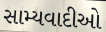
સામ્યવાદીઓ